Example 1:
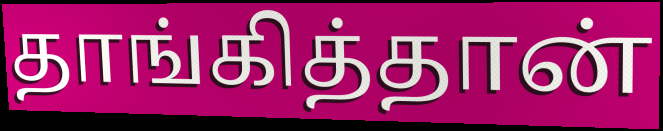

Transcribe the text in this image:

தாங்கித்தான்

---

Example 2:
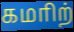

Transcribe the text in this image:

கமரிற்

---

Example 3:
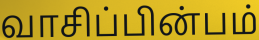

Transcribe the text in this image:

வாசிப்பின்பம்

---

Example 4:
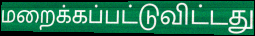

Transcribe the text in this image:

மறைக்கப்பட்டுவிட்டது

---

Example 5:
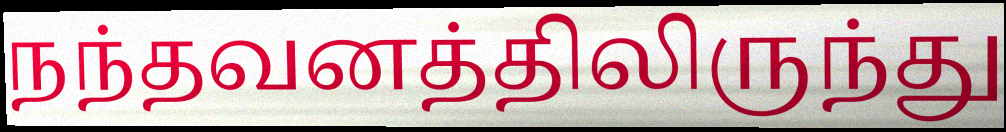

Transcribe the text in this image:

நந்தவனத்திலிருந்து